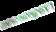
ଅବଳୀଳାକ୍ରମେ